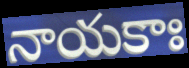
నాయకాః